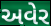
અવેર